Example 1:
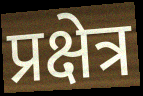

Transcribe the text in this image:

प्रक्षेत्र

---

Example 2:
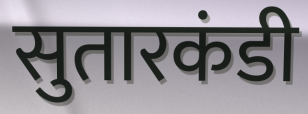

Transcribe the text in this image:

सुतारकंडी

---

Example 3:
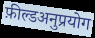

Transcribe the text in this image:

फ़ील्डअनुप्रयोग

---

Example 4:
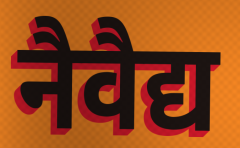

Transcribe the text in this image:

नैवैद्य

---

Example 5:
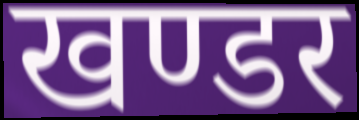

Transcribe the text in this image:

खण्डर